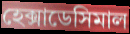
হেক্সাডেসিমাল